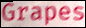
Grapes